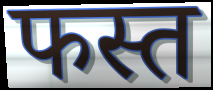
फस्त